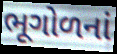
ભૂગોળનાં